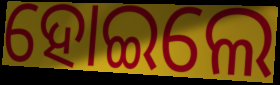
ହୋଇଲେ